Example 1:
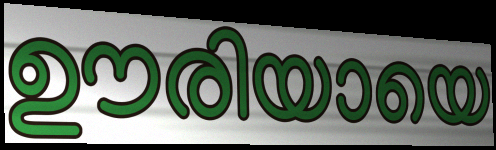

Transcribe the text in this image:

ഊരിയായെ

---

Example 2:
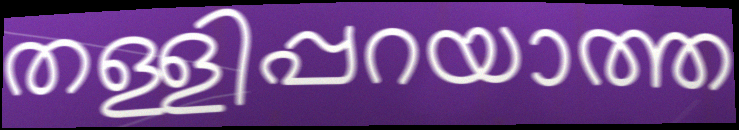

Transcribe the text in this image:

തള്ളിപ്പറയാത്ത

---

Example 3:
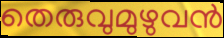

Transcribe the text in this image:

തെരുവുമുഴുവൻ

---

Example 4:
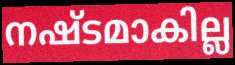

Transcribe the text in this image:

നഷ്ടമാകില്ല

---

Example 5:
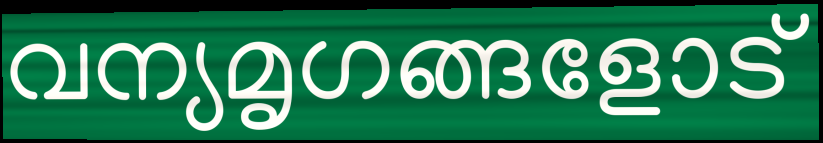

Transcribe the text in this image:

വന്യമൃഗങ്ങളോട്